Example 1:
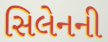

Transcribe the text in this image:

સિલેનની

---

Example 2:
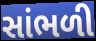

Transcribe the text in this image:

સાંભળી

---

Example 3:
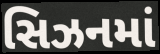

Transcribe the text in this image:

સિઝનમાં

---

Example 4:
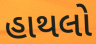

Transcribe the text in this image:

હાથલો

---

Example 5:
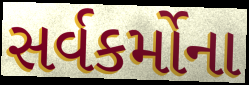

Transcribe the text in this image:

સર્વકર્મોના